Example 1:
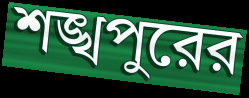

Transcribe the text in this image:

শঙ্খপুরের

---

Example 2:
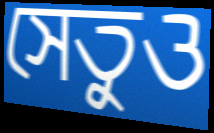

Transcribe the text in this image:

সেতুও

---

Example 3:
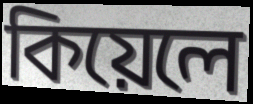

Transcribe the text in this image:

কিয়েলে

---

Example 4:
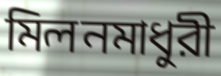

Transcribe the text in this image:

মিলনমাধুরী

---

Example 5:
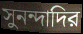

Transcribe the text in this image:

সুনন্দাদির